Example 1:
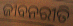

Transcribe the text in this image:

ଜୀବନରୀତି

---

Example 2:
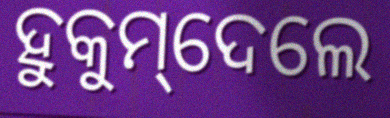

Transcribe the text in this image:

ହୁକୁମ୍‌ଦେଲେ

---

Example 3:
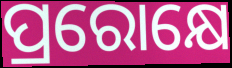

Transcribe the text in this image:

ପ୍ରରୋକ୍ଷେ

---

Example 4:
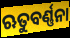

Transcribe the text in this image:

ଋତୁବର୍ଣ୍ଣନା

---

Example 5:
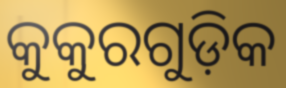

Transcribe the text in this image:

କୁକୁରଗୁଡ଼ିକ